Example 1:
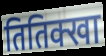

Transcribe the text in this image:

तितिक्खा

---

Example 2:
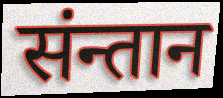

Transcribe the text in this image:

संन्तान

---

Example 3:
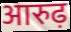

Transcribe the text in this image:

आरुढ़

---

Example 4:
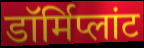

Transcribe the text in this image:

डॉर्मिप्लांट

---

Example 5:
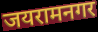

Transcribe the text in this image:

जयरामनगर